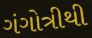
ગંગોત્રીથી